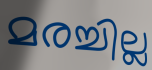
മരച്ചില്ല